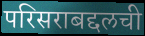
परिसराबद्दलची